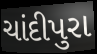
ચાંદીપુરા